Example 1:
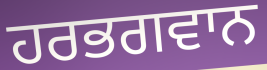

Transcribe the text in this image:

ਹਰਭਗਵਾਨ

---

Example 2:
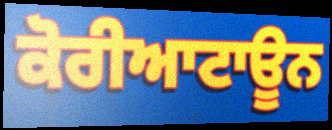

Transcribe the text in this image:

ਕੋਰੀਆਟਾਊਨ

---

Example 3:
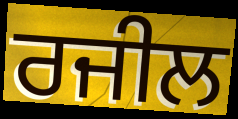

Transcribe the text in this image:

ਰਜੀਲ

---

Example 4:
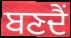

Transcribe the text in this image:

ਬਣਦੈਂ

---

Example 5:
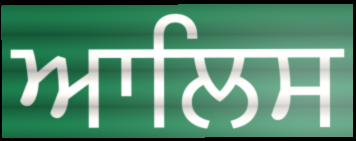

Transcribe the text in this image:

ਆਲਿਸ